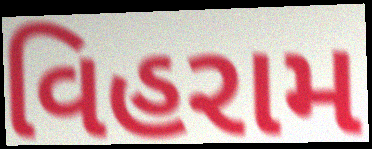
વિહરામ